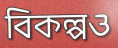
বিকল্পও